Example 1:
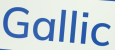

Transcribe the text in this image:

Gallic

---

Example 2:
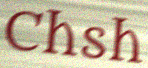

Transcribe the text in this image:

Chsh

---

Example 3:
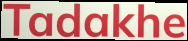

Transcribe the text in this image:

Tadakhe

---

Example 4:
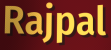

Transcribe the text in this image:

Rajpal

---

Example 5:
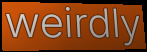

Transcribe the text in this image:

weirdly